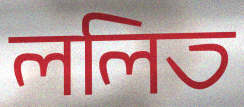
ললিত